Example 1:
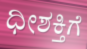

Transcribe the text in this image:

ಧೀಶಕ್ತಿಗೆ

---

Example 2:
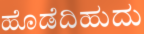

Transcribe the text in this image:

ಹೊಡೆದಿಹುದು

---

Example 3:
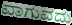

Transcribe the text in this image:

ವಾಗುವದು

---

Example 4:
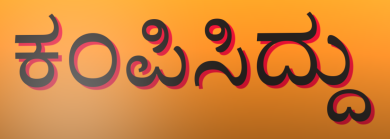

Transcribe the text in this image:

ಕಂಪಿಸಿದ್ದು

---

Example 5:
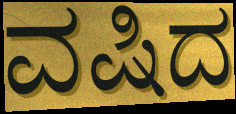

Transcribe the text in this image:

ವಷಿದ